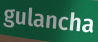
gulancha